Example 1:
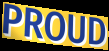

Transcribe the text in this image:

PROUD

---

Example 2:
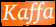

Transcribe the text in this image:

Kaffa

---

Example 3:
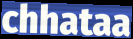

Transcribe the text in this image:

chhataa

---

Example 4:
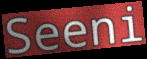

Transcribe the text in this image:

Seeni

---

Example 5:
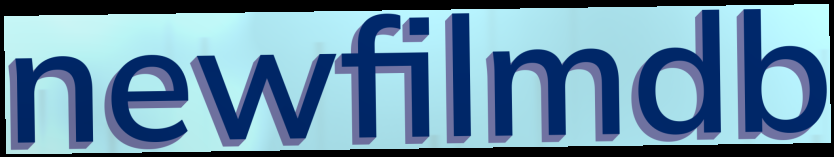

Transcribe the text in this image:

newfilmdb